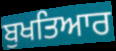
ਬੁਖਤਿਆਰ